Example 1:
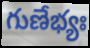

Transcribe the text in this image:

గుణేభ్యః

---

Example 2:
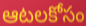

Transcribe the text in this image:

ఆటలకోసం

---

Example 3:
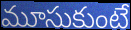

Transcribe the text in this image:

మూసుకుంటే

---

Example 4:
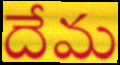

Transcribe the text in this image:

దేమ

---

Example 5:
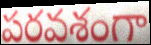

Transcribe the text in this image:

పరవశంగా